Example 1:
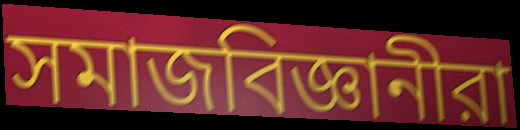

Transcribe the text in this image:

সমাজবিজ্ঞানীরা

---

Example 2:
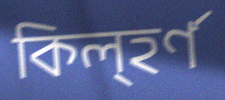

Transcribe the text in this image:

কিল্‌হর্ণ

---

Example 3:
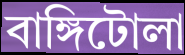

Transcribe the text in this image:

বাঙ্গিটোলা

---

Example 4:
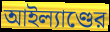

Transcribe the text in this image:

আইল্যাণ্ডের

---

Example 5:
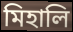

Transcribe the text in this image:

মিহালি